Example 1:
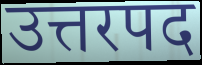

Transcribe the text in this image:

उत्तरपद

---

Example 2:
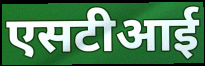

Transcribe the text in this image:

एसटीआई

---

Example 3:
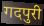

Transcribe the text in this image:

गदपुरी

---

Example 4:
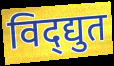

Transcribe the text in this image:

विद्द्युत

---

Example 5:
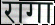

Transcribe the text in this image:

रागा